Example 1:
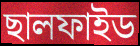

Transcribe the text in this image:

ছালফাইড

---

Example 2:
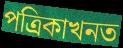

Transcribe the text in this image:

পত্ৰিকাখনত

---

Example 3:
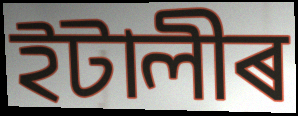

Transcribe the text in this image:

ইটালীৰ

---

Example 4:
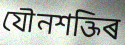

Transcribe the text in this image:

যৌনশক্তিৰ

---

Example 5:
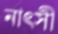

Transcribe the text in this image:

নাৎসী